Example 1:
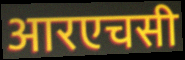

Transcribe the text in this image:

आरएचसी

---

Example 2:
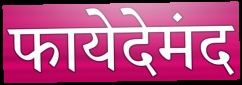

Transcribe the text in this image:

फायेदेमंद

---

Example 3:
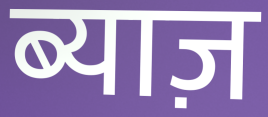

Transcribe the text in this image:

ब्याज़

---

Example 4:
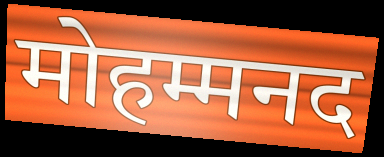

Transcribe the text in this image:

मोहम्मनद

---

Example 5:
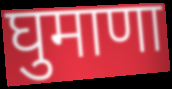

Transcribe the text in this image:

घुमाणा